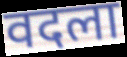
वदला